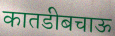
कातडीबचाऊ